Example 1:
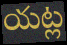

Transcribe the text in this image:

యట్ల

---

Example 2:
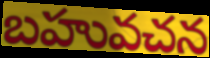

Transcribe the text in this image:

బహువచన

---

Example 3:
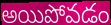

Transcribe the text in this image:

అయిపోవడం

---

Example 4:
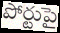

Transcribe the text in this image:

పోర్టుపై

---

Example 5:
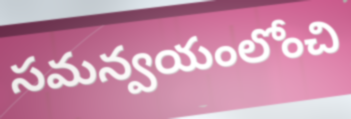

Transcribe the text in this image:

సమన్వయంలోంచి